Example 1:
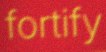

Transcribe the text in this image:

fortify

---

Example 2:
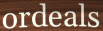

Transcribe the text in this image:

ordeals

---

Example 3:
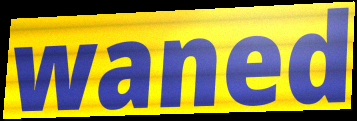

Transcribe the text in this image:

waned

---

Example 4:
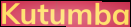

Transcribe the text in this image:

Kutumba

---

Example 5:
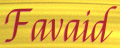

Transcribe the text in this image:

Favaid